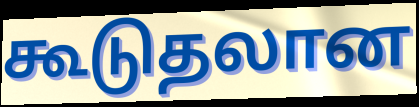
கூடுதலான